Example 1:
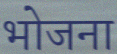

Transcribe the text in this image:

भोजना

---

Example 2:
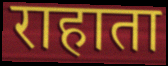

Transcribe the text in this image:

राहाता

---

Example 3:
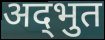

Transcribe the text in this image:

अद्‌भुत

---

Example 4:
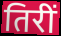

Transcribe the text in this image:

तिरीं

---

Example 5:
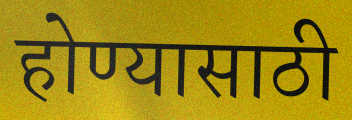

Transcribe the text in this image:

होण्यासाठी